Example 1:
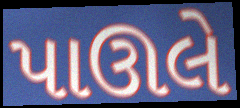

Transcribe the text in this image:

પાઊલે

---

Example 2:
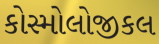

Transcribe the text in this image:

કોસ્મોલોજીકલ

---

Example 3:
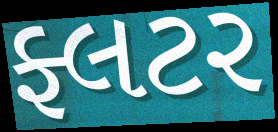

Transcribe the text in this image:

ફ્લટર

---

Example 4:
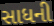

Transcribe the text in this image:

સાધની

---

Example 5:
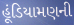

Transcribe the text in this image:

હૂંડિયામણની